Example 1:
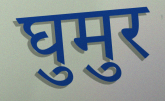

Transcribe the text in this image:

घुमुर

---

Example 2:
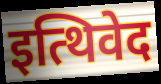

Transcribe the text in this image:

इत्थिवेद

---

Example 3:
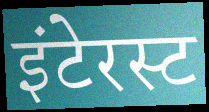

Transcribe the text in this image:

इंटेरस्ट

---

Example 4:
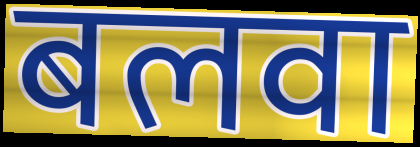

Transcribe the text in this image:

बलवा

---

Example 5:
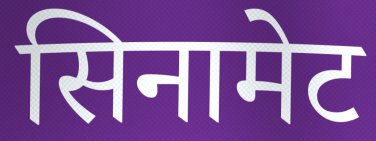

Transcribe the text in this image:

सिनामेट